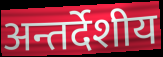
अन्तर्देशीय